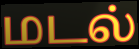
மடல்